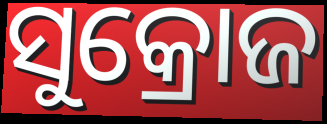
ସୁକ୍ରୋଜ